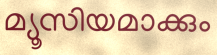
മ്യൂസിയമാക്കും